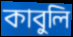
কাবুলি